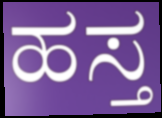
ಹಸ್ತ